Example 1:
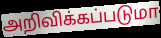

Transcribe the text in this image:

அறிவிக்கப்படுமா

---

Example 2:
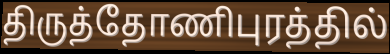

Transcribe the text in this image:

திருத்தோணிபுரத்தில்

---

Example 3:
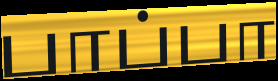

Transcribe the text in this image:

பாப்பா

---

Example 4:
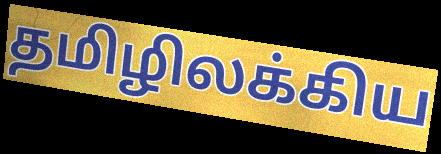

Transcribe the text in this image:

தமிழிலக்கிய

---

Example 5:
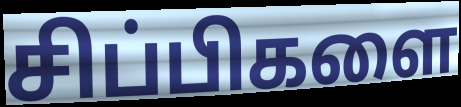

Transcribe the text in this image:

சிப்பிகளை